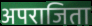
अपराजिता